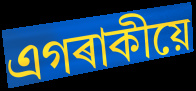
এগৰাকীয়ে